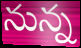
నున్న